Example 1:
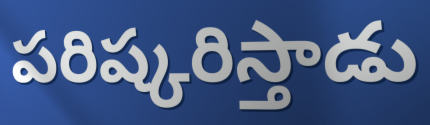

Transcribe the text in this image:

పరిష్కరిస్తాడు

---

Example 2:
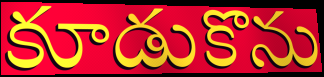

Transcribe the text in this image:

కూడుకొను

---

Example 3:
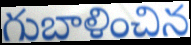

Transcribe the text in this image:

గుబాళించిన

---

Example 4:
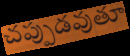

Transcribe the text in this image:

చప్పుడవుతూ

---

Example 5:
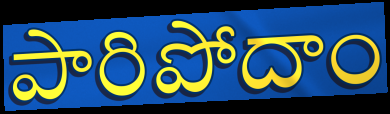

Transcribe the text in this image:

పారిపోదాం